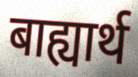
बाह्यार्थ